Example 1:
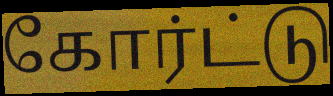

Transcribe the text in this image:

கோர்ட்டு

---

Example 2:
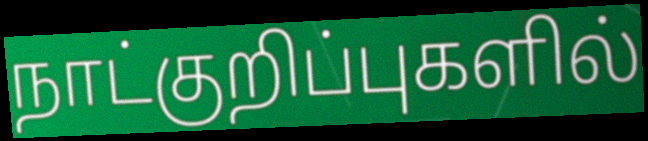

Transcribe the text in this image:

நாட்குறிப்புகளில்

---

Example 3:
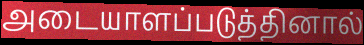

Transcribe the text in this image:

அடையாளப்படுத்தினால்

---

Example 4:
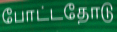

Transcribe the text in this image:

போட்டதோடு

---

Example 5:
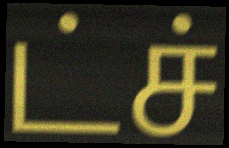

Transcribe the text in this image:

ட்ச்